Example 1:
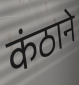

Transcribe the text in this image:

कंठाने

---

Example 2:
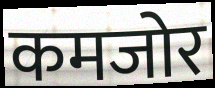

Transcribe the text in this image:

कमजोर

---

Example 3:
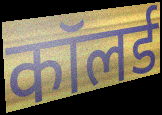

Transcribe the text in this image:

कॉलर्ड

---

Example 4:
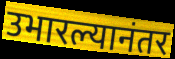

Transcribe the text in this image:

उभारल्यानंतर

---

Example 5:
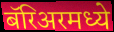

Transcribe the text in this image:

बॅरिअरमध्ये